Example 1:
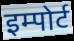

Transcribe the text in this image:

इम्पोर्ट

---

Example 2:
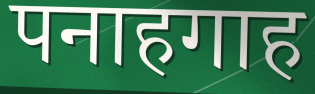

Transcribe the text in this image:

पनाहगाह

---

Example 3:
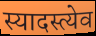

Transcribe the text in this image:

स्यादस्त्येव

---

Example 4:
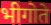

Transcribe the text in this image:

भीगोते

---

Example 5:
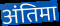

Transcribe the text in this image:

अंतिमा